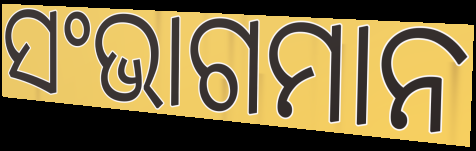
ସଂଭାଗମାନ